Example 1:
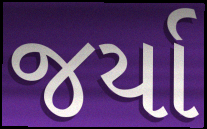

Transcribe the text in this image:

જર્યા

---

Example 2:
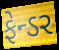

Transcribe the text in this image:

ફેન્ડર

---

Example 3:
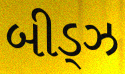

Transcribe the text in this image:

બીડ્ઝ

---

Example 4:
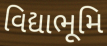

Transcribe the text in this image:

વિદ્યાભૂમિ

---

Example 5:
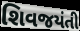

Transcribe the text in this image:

શિવજયંતી